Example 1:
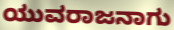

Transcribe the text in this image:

ಯುವರಾಜನಾಗು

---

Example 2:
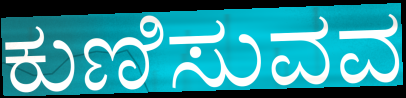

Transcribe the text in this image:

ಕುಣಿಸುವವ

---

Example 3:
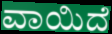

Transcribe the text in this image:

ವಾಯಿದೆ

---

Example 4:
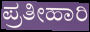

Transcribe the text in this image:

ಪ್ರತೀಹಾರಿ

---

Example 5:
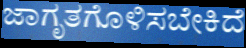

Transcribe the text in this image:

ಜಾಗೃತಗೊಳಿಸಬೇಕಿದೆ